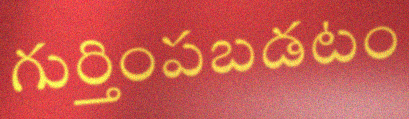
గుర్తింపబడటం